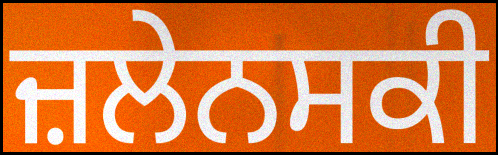
ਜ਼ਲੇਨਸਕੀ